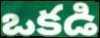
ఒకడి